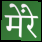
मेंरे